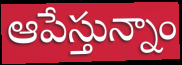
ఆపేస్తున్నాం